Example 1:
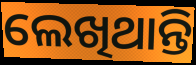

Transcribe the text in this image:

ଲେଖିଥାନ୍ତି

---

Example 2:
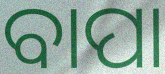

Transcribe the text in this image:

ବାପା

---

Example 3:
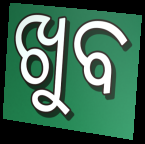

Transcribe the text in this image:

ଖୁବ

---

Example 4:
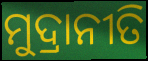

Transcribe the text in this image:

ମୁଦ୍ରାନୀତି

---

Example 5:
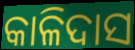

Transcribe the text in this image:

କାଳିଦାସ